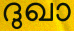
ദുഖാ